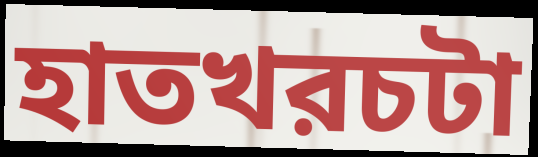
হাতখরচটা